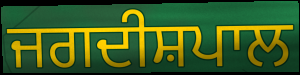
ਜਗਦੀਸ਼ਪਾਲ